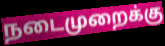
நடைமுறைக்கு